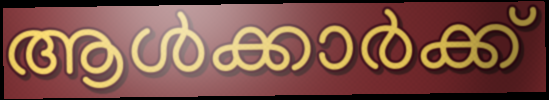
ആൾക്കാർക്ക്